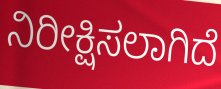
ನಿರೀಕ್ಷಿಸಲಾಗಿದೆ